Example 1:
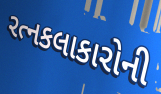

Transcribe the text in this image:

રત્નકલાકારોની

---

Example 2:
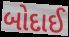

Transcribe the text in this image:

બોદાઈ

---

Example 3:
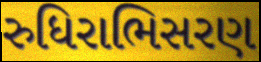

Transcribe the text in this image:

રુધિરાભિસરણ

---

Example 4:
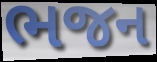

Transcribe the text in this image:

ભજન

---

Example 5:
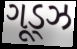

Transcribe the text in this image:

ગૂડ્ઝ